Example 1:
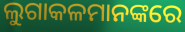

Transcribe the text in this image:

ଲୁଗାକଳମାନଙ୍କରେ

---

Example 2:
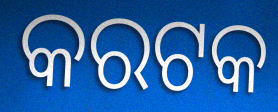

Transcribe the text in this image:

କରଟକ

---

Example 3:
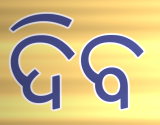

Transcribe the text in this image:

ଦିବ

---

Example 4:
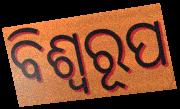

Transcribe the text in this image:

ବିଶ୍ବରୂପ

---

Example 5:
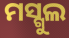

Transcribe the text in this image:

ମସ୍ଗୁଲ